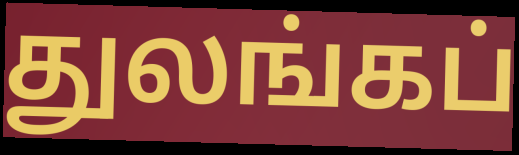
துலங்கப்